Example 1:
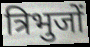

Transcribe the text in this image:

त्रिभुजों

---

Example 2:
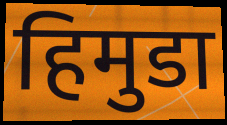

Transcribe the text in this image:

हिमुडा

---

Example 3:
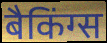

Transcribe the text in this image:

बैकिंग्स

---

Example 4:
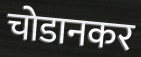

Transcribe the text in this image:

चोडानकर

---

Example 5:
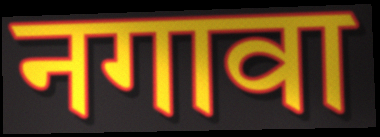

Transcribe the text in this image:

नगावा